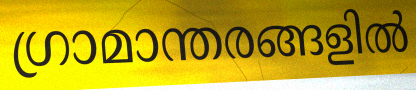
ഗ്രാമാന്തരങ്ങളിൽ